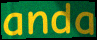
anda